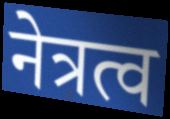
नेत्रत्व